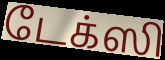
டேக்ஸி